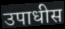
उपाधीस